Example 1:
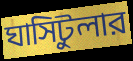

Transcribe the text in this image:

ঘাসিটুলার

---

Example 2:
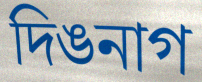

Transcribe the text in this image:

দিঙনাগ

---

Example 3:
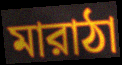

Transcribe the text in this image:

মারাঠা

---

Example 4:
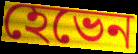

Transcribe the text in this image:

হেভেন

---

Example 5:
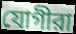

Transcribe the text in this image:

যোগীরা